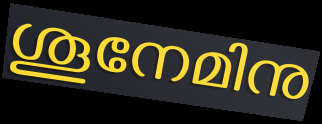
ശൂനേമിനു